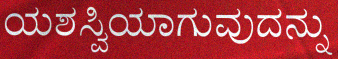
ಯಶಸ್ವಿಯಾಗುವುದನ್ನು